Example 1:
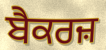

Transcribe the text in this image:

ਬੈਕਰਜ਼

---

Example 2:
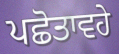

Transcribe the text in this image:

ਪਛੋਤਾਵਹੇ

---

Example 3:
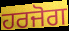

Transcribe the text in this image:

ਹਰਜੋਗ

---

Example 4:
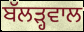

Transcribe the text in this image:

ਬੱਲੜ੍ਹਵਾਲ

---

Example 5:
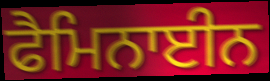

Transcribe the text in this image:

ਫੈਮਿਨਾਈਨ